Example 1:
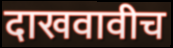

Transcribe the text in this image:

दाखवावीच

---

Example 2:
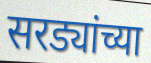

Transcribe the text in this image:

सरड्यांच्या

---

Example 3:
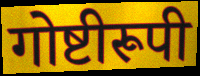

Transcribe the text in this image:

गोष्टीरूपी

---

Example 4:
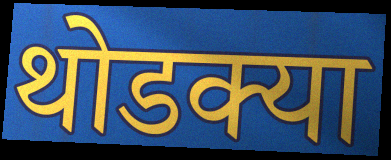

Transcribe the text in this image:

थोडक्या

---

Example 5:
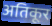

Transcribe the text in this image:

अतिकूर